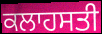
ਕਲਾਹਸਤੀ